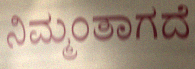
ನಿಮ್ಮಂತಾಗದೆ